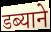
डब्याने